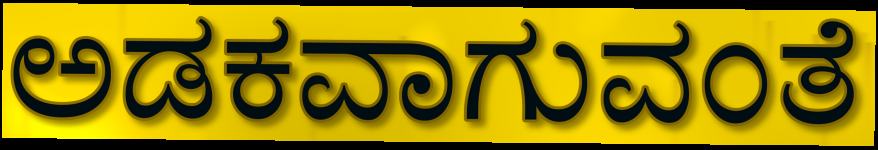
ಅಡಕವಾಗುವಂತೆ